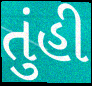
તુંહી